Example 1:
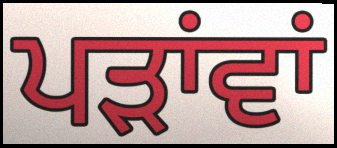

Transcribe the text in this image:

ਪੜਾਂਵਾਂ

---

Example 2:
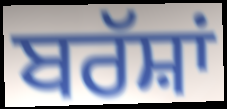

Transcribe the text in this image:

ਬਰੱਸ਼ਾਂ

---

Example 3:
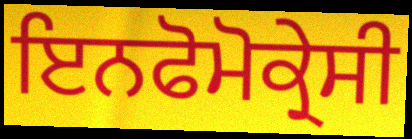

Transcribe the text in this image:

ਇਨਫੋਮੋਕ੍ਰੇਸੀ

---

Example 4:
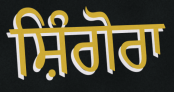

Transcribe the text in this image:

ਸ਼ਿੰਗੋਰਾ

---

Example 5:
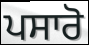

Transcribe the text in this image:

ਪਸਾਰੋ